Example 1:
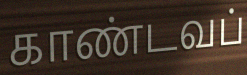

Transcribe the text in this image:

காண்டவப்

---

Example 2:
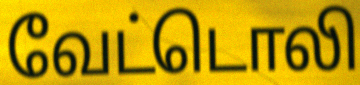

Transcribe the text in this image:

வேட்டொலி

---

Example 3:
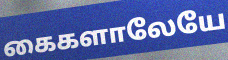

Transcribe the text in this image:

கைகளாலேயே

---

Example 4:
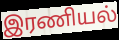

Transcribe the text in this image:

இரணியல்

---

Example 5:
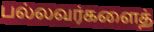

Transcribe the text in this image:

பல்லவர்களைத்